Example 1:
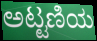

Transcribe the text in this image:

ಅಟ್ಟಣಿಯ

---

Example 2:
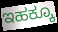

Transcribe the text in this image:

ಇಹಕ್ಕೂ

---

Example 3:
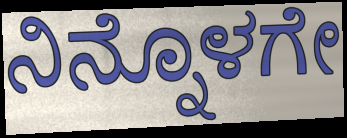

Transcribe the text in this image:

ನಿನ್ನೊಳಗೇ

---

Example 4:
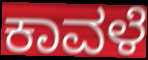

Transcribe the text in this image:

ಕಾವಳೆ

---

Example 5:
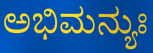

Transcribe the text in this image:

ಅಭಿಮನ್ಯುಃ